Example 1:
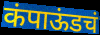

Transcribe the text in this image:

कंपाऊंडचं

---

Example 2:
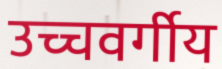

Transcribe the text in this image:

उच्चवर्गीय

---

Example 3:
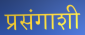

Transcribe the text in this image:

प्रसंगाशी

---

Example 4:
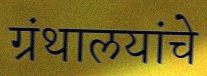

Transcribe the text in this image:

ग्रंथालयांचे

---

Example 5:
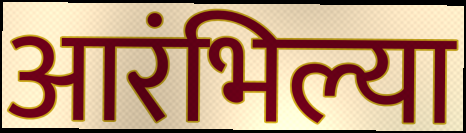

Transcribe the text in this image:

आरंभिल्या